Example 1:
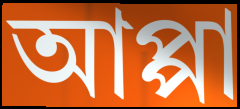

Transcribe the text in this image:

আপ্পা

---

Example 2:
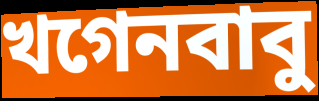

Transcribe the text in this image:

খগেনবাবু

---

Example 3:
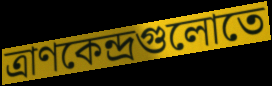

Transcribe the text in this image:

ত্রাণকেন্দ্রগুলোতে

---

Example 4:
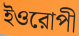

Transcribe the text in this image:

ইওরোপী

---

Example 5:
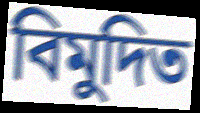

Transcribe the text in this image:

বিমুদিত